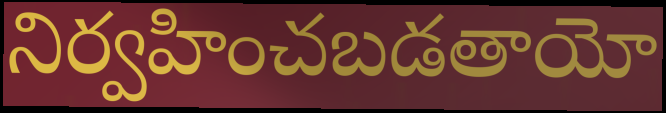
నిర్వహించబడతాయో